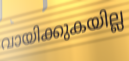
വായിക്കുകയില്ല